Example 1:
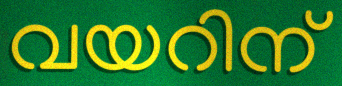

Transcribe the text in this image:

വയറിന്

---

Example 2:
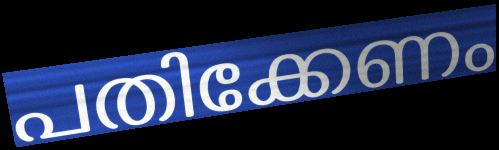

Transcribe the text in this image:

പതിക്കേണം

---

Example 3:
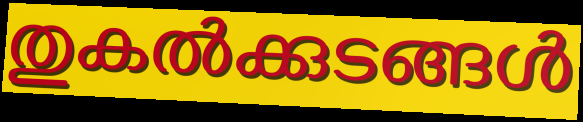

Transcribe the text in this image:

തുകൽക്കുടങ്ങൾ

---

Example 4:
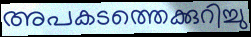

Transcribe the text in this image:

അപകടത്തെക്കുറിച്ചു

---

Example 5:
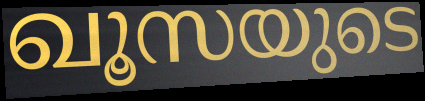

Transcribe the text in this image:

ഖൂസയുടെ